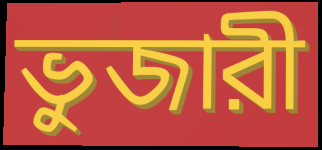
ভুজারী